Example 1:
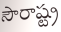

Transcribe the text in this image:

సౌరాష్ట్ర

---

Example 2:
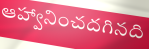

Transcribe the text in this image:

ఆహ్వానించదగినది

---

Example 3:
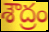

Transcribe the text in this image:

శౌద్రం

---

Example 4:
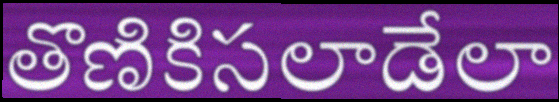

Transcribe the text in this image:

తొణికిసలాడేలా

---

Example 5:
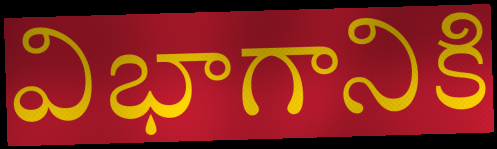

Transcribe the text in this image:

విభాగానికి